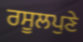
ਰਸੂਲਪੁਣੇ